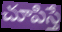
చూపిస్తే